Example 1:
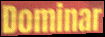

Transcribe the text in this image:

Dominar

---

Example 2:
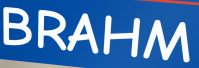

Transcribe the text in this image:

BRAHM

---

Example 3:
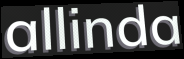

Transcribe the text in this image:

allinda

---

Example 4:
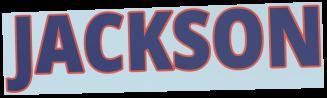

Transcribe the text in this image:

JACKSON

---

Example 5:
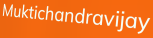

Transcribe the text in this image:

Muktichandravijay